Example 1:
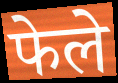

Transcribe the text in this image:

फेले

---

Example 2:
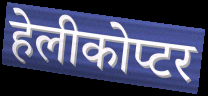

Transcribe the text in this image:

हेलीकोप्टर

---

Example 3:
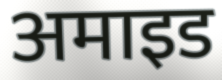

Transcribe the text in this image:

अमाइड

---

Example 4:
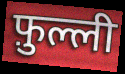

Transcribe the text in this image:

फ़ुल्ली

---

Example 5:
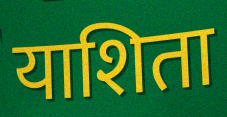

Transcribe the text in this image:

याशिता